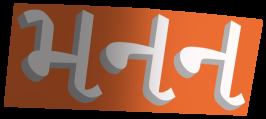
મનન